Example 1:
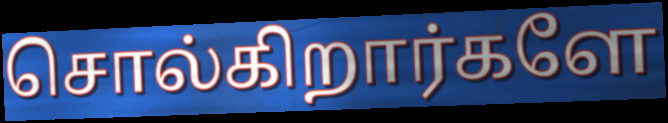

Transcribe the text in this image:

சொல்கிறார்களே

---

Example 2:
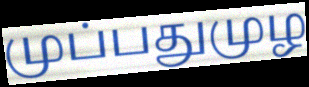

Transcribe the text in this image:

முப்பதுமுழ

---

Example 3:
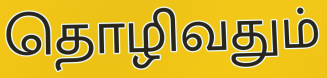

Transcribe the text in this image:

தொழிவதும்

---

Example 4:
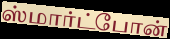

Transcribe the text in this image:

ஸ்மார்ட்போன்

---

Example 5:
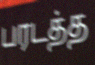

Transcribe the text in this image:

பரடத்த